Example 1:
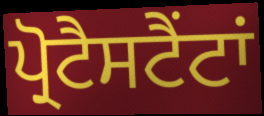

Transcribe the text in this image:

ਪ੍ਰੋਟੈਸਟੈਂਟਾਂ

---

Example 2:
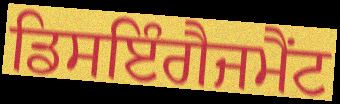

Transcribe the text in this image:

ਡਿਸਇੰਗੈਜਮੈਂਟ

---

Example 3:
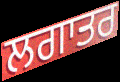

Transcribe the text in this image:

ਲਗਾਤਰ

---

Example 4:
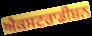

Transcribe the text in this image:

ਐਕਸਟਰਾਡੀਸ਼ਨ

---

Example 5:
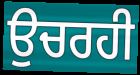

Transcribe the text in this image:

ਉਚਰਹੀ